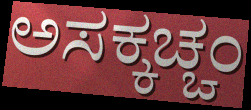
ಅಸಕ್ಕಚ್ಚಂ